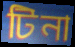
টিনা